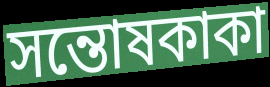
সন্তোষকাকা